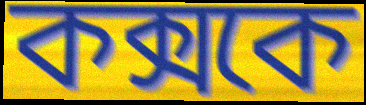
কক্সকে